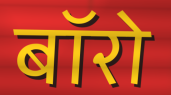
बॉरो